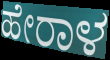
ಹೇರಾಳ